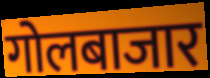
गोलबाजार